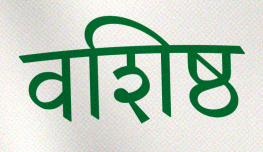
वशिष्ठ